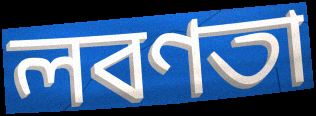
লবণতা